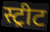
स्ट्रीट